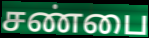
சண்பை